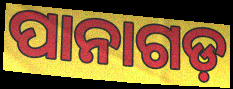
ପାନାଗଡ଼